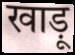
खाड़ू